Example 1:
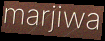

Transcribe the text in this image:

marjiwa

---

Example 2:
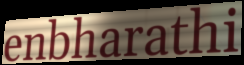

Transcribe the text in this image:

enbharathi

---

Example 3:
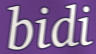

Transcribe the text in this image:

bidi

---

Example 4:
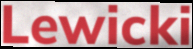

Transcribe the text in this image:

Lewicki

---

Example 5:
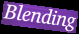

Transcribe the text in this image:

Blending